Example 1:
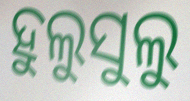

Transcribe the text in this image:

ହୁଲୁସୁଲୁ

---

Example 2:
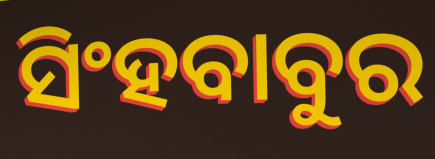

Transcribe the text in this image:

ସିଂହବାବୁର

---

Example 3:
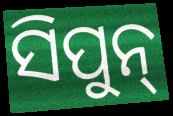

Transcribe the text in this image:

ସିପୁନ୍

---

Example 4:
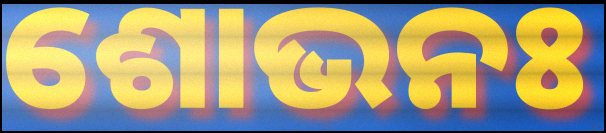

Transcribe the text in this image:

ଶୋଭନଃ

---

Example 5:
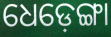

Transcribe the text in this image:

ଧେଡ଼େଙ୍ଗା